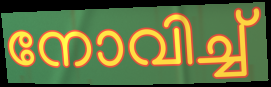
നോവിച്ച്